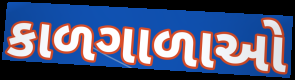
કાળગાળાઓ